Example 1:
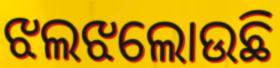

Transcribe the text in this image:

ଝଲଝଲୋଉଛି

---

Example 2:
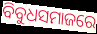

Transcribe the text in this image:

ବିବୁଧସମାଜରେ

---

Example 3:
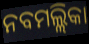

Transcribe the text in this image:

ନବମଲ୍ଲିକା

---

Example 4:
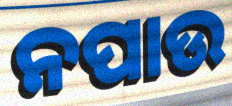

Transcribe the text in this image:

ନପାଉ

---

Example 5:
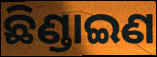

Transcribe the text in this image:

ଛିଣ୍ଡାଇଣ